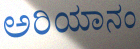
ಅರಿಯಾನಂ